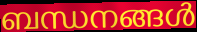
ബന്ധനങ്ങൾ